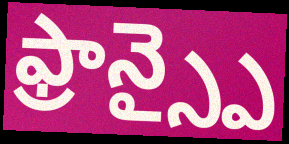
ఫ్రాన్స్పై